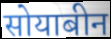
सोयाबीन